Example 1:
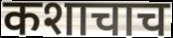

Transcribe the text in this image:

कशाचाच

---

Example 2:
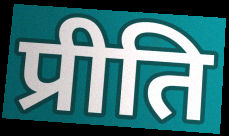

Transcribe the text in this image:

प्रीति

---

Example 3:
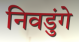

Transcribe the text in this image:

निवडुंगे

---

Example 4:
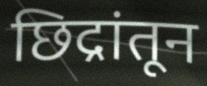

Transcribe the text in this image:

छिद्रांतून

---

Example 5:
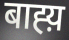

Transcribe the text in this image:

बाह्य़